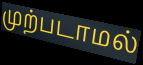
முற்படாமல்